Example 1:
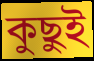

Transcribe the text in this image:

কুছুই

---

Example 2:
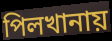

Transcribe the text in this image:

পিলখানায়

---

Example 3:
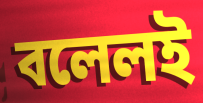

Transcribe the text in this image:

বলেলই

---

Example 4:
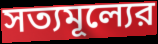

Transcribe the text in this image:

সত্যমূল্যের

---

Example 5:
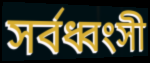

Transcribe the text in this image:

সর্বধ্বংসী